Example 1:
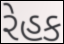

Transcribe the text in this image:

રેહક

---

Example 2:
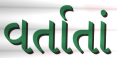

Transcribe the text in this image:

વર્તાતાં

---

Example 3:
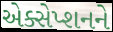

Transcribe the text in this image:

એક્સેપ્શનને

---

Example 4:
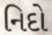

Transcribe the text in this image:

નિદો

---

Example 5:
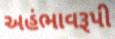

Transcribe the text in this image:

અહંભાવરૂપી